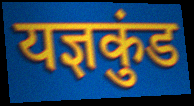
यज्ञकुंड